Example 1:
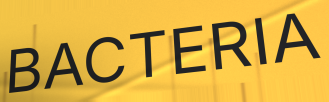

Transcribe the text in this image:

BACTERIA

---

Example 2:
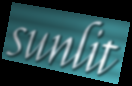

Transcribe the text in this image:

sunlit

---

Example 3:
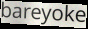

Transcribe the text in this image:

bareyoke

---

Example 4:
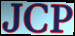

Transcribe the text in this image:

JCP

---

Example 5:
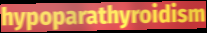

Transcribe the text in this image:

hypoparathyroidism